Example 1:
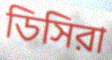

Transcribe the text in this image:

ডিসিরা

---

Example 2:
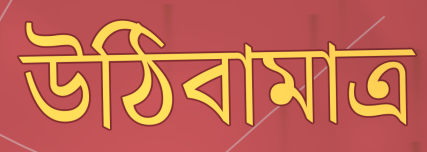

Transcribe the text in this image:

উঠিবামাত্র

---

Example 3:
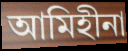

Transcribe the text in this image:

আমিহীনা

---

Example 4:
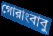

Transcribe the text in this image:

গোরাংবাবু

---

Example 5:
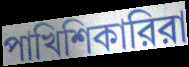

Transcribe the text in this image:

পাখিশিকারিরা